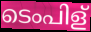
ടെംപിള്